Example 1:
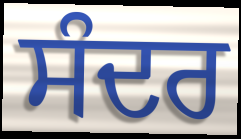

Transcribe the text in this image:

ਸੰਦਰ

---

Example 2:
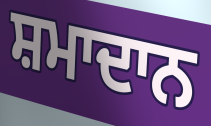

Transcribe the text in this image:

ਸ਼ਮਾਦਾਨ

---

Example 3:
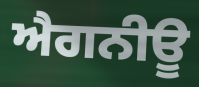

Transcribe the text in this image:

ਐਗਨੀਊ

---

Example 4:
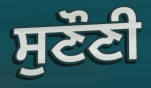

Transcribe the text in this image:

ਸੁਣੌਣੀ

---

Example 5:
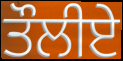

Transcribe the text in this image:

ਤੌਲੀਏ